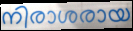
നിരാശരായ